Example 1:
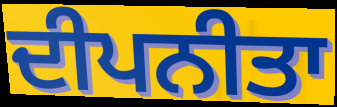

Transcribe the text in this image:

ਦੀਪਨੀਤਾ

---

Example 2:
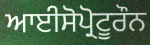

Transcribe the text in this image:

ਆਈਸੋਪ੍ਰੋਟੂਰੌਨ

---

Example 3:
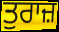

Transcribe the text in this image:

ਤੁਰਾਜ਼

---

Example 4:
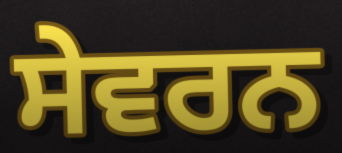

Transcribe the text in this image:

ਸੇਵਰਨ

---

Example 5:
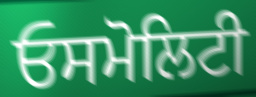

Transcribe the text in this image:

ਓਸਮੋਲਿਟੀ